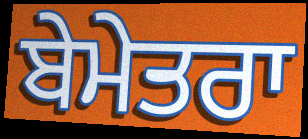
ਬੇਮੇਤਰਾ